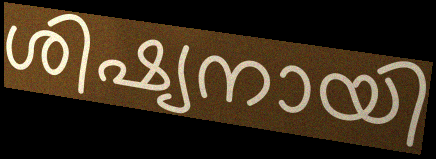
ശിഷ്യനായി